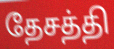
தேசத்தி